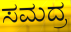
ಸಮದ್ರ